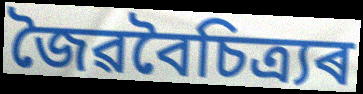
জৈৱবৈচিত্ৰ্যৰ